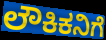
ಲೌಕಿಕನಿಗೆ